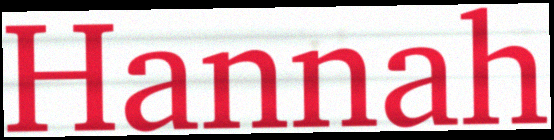
Hannah